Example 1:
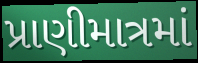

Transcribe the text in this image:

પ્રાણીમાત્રમાં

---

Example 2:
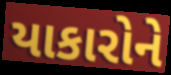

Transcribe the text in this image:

યાકારોને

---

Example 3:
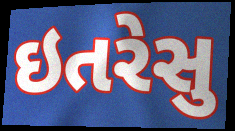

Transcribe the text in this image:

ઇતરેસુ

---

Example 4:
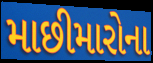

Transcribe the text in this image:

માછીમારોના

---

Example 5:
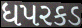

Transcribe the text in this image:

ધપરકડ